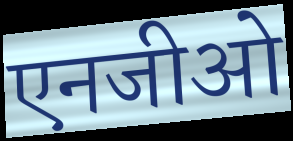
एनजीओ